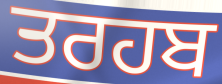
ਤਰਹਬ